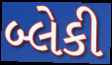
બ્લેકી